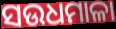
ସଉଧମାଳା